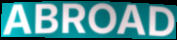
ABROAD